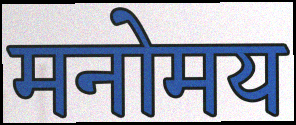
मनोमय